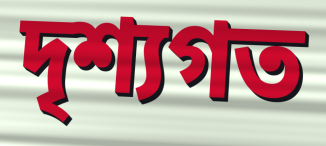
দৃশ্যগত